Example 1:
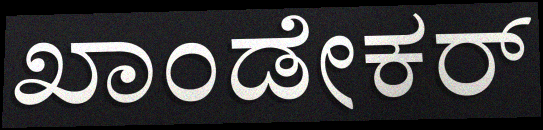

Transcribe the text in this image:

ಖಾಂಡೇಕರ್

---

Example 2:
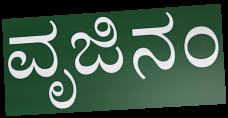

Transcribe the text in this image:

ವೃಜಿನಂ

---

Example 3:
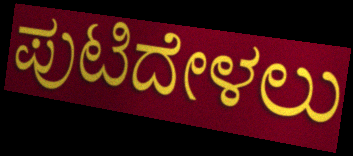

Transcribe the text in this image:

ಪುಟಿದೇಳಲು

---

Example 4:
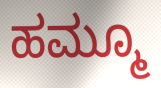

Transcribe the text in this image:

ಹಮ್ಮೂ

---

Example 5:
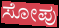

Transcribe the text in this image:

ಸೋಪು